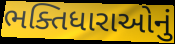
ભક્તિધારાઓનું